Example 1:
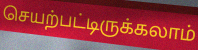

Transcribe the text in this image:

செயற்பட்டிருக்கலாம்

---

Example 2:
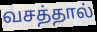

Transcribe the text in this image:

வசத்தால்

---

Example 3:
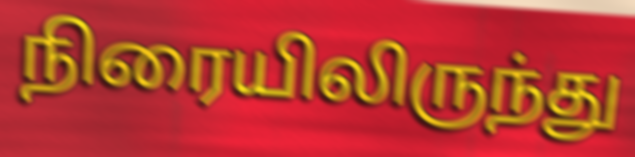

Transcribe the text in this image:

நிரையிலிருந்து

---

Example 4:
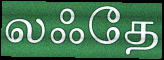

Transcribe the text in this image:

லஃதே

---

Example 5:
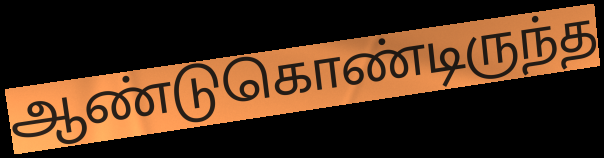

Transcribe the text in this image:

ஆண்டுகொண்டிருந்த